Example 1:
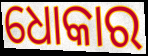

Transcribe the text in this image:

ଧୋକାର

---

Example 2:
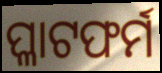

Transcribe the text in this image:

ପ୍ଳାଟଫର୍ମ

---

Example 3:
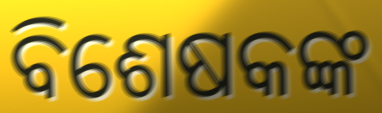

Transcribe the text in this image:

ବିଶେଷକଙ୍କ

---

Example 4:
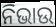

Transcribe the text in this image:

ନିଭାଉ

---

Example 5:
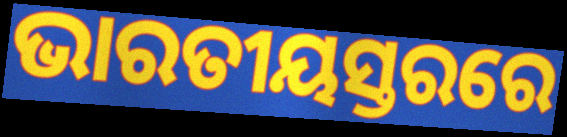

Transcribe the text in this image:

ଭାରତୀୟସ୍ତରରେ